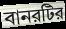
বানরটির